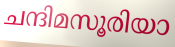
ചന്ദിമസൂരിയാ